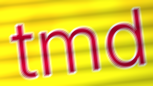
tmd